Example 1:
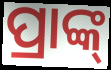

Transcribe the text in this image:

ପ୍ରାଙ୍କ୍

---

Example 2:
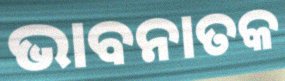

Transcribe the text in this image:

ଭାବନାତକ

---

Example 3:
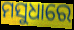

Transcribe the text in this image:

ମସୁଧାରେ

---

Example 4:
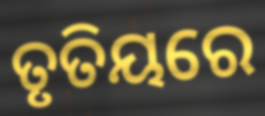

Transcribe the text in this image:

ତୃତିୟରେ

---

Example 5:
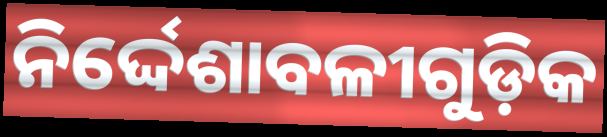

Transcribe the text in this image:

ନିର୍ଦ୍ଦେଶାବଳୀଗୁଡ଼ିକ